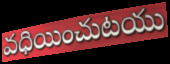
వధియించుటయు